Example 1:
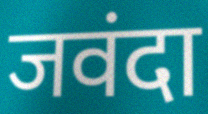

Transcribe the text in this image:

जवंदा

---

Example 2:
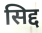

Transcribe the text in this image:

सिद्द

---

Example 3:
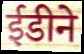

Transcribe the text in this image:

ईडीने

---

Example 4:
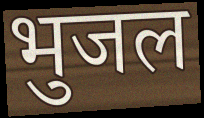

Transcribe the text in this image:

भुजल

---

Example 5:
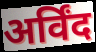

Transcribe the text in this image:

अर्विंद